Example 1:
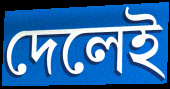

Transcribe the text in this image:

দেলেই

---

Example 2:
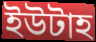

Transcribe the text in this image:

ইউটাহ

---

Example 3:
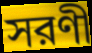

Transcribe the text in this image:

সরণী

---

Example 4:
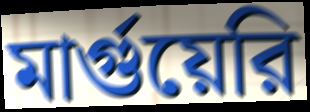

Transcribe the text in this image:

মার্গুয়েরি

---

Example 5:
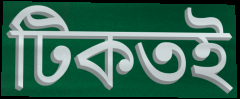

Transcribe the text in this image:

টিকতই